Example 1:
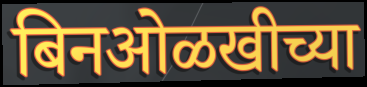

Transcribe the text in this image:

बिनओळखीच्या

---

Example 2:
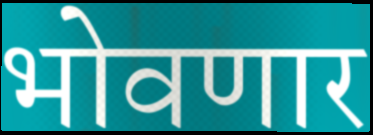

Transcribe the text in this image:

भोवणार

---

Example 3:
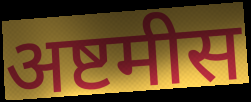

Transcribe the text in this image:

अष्टमीस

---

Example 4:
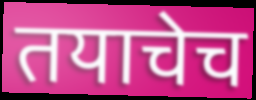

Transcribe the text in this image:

तयाचेच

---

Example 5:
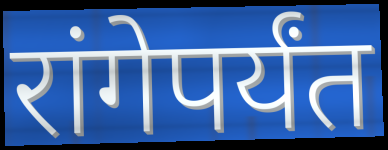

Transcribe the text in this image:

रांगेपर्यंत